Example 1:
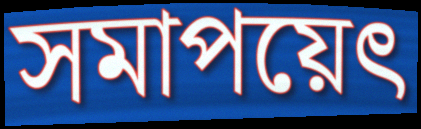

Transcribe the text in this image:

সমাপয়েৎ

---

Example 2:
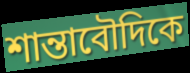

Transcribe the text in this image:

শান্তাবৌদিকে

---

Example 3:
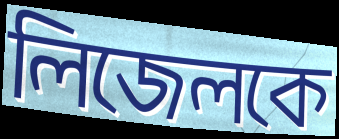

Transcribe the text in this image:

লিজেলকে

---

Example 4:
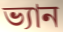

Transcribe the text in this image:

ভ্যান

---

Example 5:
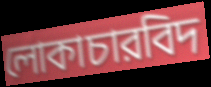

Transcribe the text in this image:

লোকাচারবিদ